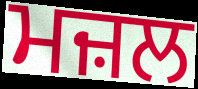
ਮਜ਼ਲ